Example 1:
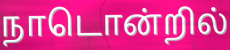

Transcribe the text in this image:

நாடொன்றில்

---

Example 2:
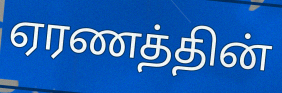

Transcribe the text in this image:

ஏரணத்தின்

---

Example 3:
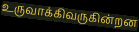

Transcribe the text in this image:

உருவாக்கிவருகின்றன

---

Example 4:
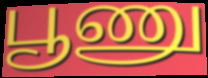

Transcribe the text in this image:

பூணு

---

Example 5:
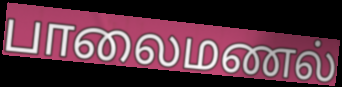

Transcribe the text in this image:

பாலைமணல்